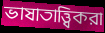
ভাষাতাত্ত্বিকরা